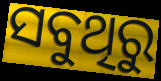
ସବୁଥିରୁ